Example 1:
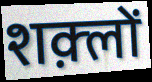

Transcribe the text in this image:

शक़्लों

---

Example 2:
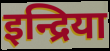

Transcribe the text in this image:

इन्द्रिया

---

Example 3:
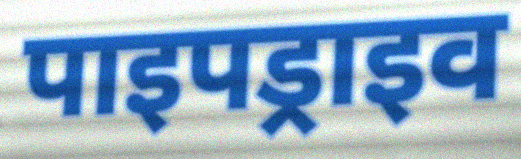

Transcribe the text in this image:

पाइपड्राइव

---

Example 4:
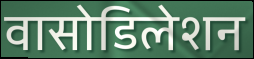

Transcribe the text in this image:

वासोडिलेशन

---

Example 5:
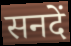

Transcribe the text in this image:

सनदें